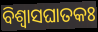
ବିଶ୍ୱାସଘାତକଃ